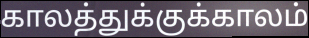
காலத்துக்குக்காலம்